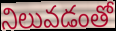
నిలువడంతో